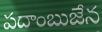
పదాంబుజేన